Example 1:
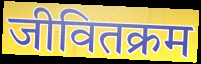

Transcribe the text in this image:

जीवितक्रम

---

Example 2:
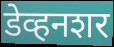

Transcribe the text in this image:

डेव्हनशर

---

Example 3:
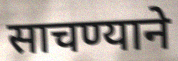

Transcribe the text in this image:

साचण्याने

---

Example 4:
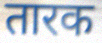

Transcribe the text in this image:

तारक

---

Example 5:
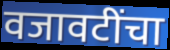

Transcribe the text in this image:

वजावटींचा